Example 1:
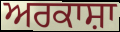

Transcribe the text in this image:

ਅਰਕਾਸ਼ਾ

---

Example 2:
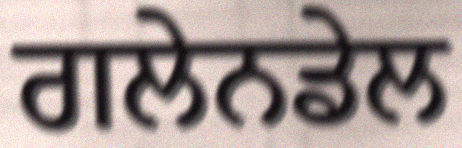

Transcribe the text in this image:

ਗਲੇਨਡੇਲ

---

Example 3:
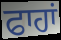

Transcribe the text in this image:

ਫਾਹਾਂ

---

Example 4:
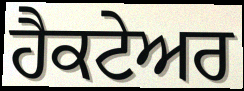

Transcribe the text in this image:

ਹੈਕਟੇਅਰ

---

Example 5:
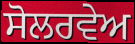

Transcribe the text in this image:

ਸੋਲਰਵੇਅ